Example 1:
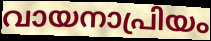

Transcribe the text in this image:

വായനാപ്രിയം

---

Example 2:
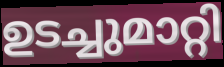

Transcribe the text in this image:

ഉടച്ചുമാറ്റി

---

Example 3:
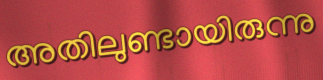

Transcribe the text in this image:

അതിലുണ്ടായിരുന്നു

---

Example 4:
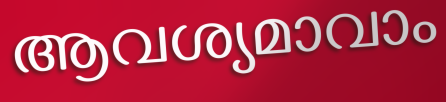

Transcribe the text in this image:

ആവശ്യമാവാം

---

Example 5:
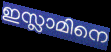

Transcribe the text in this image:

ഇസ്ലാമിനെ